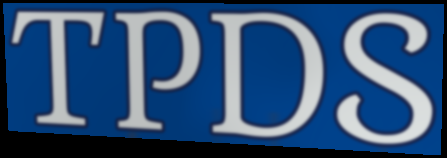
TPDS